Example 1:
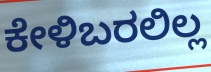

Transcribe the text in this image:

ಕೇಳಿಬರಲಿಲ್ಲ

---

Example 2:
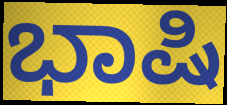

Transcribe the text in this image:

ಭಾಷಿ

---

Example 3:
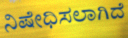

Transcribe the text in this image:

ನಿಷೇಧಿಸಲಾಗಿದೆ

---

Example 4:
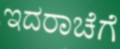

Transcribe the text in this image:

ಇದರಾಚೆಗೆ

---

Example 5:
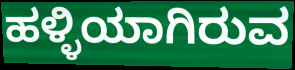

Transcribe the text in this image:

ಹಳ್ಳಿಯಾಗಿರುವ